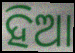
ହିଆ